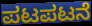
ಪಟಪಟನೆ